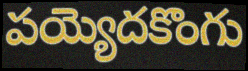
పయ్యెదకొంగు